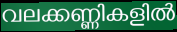
വലക്കണ്ണികളിൽ